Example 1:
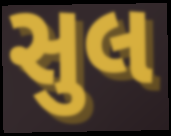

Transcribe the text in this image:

સુલ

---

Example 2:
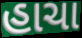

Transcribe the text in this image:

હાચા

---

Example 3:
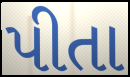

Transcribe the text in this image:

પીતા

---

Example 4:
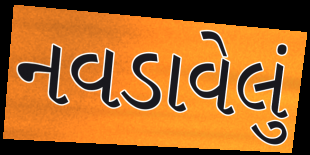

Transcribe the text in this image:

નવડાવેલું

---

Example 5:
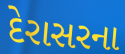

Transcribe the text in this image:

દેરાસરના